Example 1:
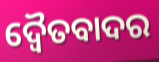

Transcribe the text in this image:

ଦ୍ୱୈତବାଦର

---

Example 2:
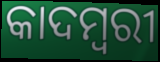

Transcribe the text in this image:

କାଦମ୍ବରୀ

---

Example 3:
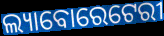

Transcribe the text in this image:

ଲ୍ୟାବୋରେଟେରୀ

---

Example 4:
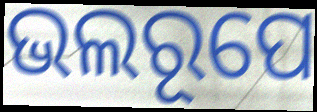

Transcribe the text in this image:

ଭଲରୂପେ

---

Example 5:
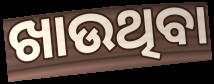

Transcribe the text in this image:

ଖାଉଥିବା